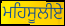
ਮਹਿਸੂਲੀਏ